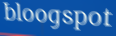
bloogspot